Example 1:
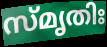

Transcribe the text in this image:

സ്മൃതിഃ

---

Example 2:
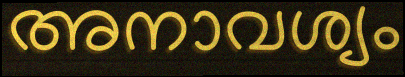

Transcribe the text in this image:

അനാവശ്യം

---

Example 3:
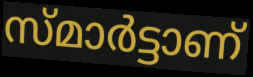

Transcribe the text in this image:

സ്മാർട്ടാണ്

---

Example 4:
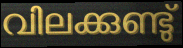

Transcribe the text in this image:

വിലക്കുണ്ടു്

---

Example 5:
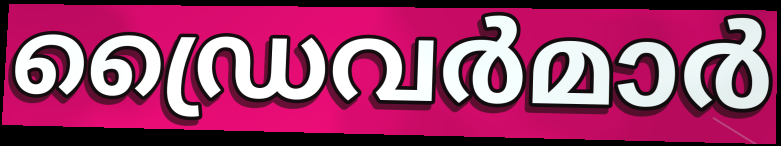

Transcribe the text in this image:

ഡ്രൈവർമാർ